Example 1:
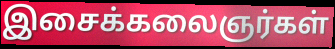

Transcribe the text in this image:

இசைக்கலைஞர்கள்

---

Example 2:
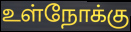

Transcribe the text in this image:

உள்நோக்கு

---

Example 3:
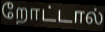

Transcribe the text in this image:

றோட்டால்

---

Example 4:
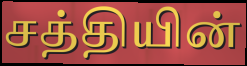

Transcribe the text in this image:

சத்தியின்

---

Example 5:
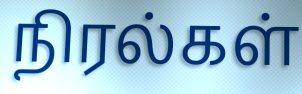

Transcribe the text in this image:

நிரல்கள்